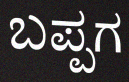
ಬಪ್ಪಗ